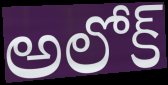
అలోక్